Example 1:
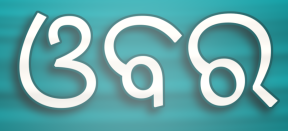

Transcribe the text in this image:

ଓବର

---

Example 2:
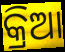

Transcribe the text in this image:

କ୍ରିଆ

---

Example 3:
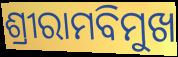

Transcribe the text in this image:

ଶ୍ରୀରାମବିମୁଖ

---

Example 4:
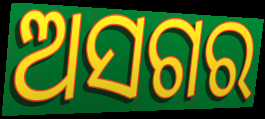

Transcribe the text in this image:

ଅସଗର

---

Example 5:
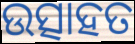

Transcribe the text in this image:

ଉତ୍ସାହତ